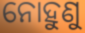
ନୋହୁଣୁ